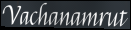
Vachanamrut